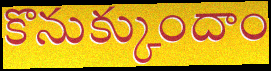
కొనుక్కుందాం